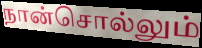
நான்சொல்லும்